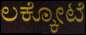
ಲಕ್ಕೋಟೆ